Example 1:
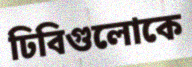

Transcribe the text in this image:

ঢিবিগুলোকে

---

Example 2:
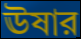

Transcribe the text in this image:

ঊষার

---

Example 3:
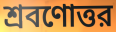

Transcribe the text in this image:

শ্রবণোত্তর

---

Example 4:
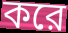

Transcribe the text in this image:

করে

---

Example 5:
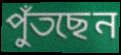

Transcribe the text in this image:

পুঁতছেন